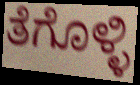
ತೆಗೊಳ್ಳಿ